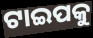
ଟାଇପକୁ